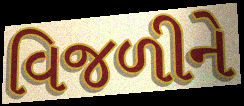
વિજળીને